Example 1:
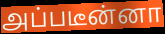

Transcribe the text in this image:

அப்படீன்னா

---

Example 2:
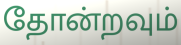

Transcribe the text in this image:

தோன்றவும்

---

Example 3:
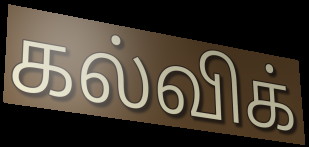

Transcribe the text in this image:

கல்விக்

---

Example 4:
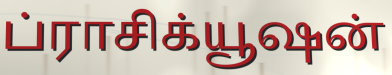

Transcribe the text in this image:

ப்ராசிக்யூஷன்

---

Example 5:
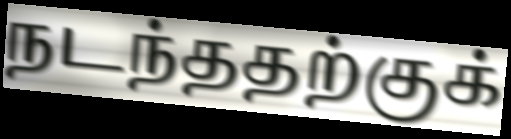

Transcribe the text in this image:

நடந்ததற்குக்